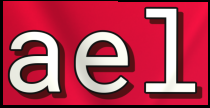
ael